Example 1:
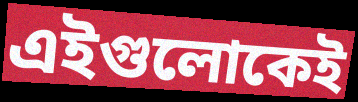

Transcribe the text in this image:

এইগুলোকেই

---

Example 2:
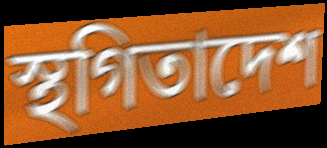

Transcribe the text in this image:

স্থগিতাদেশ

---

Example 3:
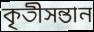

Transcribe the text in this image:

কৃতীসন্তান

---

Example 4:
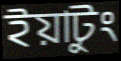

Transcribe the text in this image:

ইয়াটুং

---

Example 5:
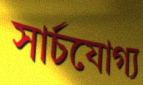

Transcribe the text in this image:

সার্চযোগ্য